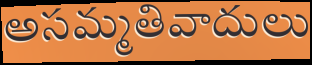
అసమ్మతివాదులు